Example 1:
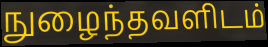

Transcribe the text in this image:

நுழைந்தவளிடம்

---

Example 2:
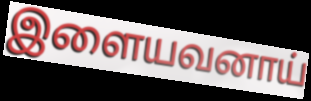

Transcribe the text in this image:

இளையவனாய்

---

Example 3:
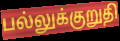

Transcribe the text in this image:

பல்லுக்குறுதி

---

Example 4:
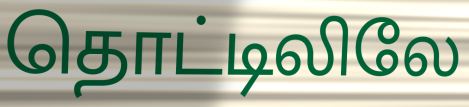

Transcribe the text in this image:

தொட்டிலிலே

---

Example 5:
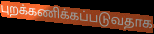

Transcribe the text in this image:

புறக்கணிக்கப்படுவதாக